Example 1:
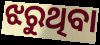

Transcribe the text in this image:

ଝରୁଥିବା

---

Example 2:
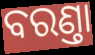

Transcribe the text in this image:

ବରଣ୍ତା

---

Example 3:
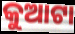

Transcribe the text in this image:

କୁଆଟା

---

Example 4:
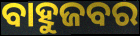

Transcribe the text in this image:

ବାହୁଜବର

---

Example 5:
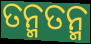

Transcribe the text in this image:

ତନ୍ମତନ୍ମ